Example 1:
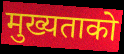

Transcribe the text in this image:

मुख्यताको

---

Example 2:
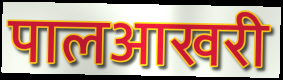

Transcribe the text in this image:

पालआखरी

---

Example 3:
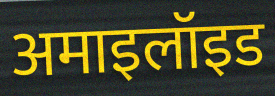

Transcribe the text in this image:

अमाइलॉइड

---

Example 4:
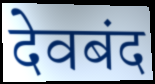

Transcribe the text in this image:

देवबंद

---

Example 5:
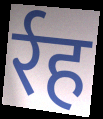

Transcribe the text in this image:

र्रह